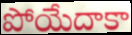
పోయేదాకా